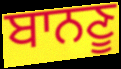
ਬਾਨਣੂ